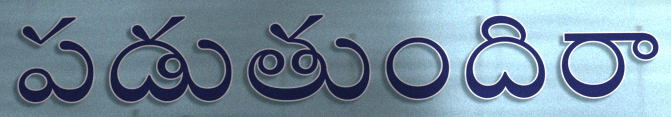
పడుతుందిరా